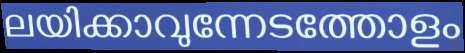
ലയിക്കാവുന്നേടത്തോളം